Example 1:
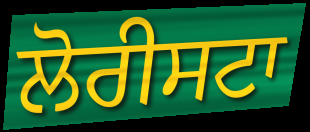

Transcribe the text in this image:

ਲੋਰੀਸਟਾ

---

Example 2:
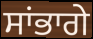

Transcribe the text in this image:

ਸਾਂਭਾਗੇ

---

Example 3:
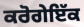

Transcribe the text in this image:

ਕਰੋਗੇਇੱਕ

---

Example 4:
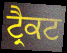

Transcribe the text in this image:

ਟ੍ਰੈਕਟ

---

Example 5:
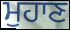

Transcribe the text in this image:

ਮੁਹਾਣ